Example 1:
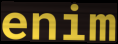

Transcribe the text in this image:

enim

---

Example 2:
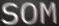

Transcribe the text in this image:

SOM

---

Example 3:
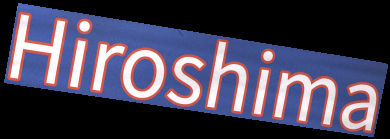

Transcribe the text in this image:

Hiroshima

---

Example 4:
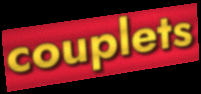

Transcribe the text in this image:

couplets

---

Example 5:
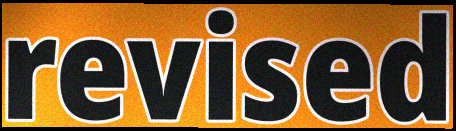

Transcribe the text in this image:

revised